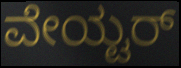
ವೇಯ್ಟರ್